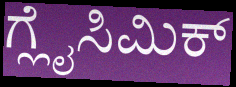
ಗ್ಲೈಸಿಮಿಕ್